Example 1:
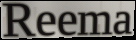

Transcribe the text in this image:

Reema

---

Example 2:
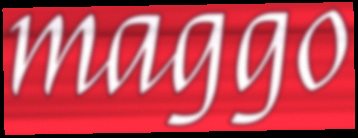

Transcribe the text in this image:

maggo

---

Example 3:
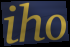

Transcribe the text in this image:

iho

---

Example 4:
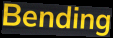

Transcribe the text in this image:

Bending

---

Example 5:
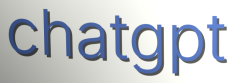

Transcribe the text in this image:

chatgpt